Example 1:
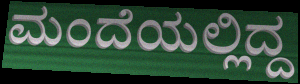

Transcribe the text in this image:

ಮಂದೆಯಲ್ಲಿದ್ದ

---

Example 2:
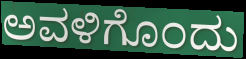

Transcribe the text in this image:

ಅವಳಿಗೊಂದು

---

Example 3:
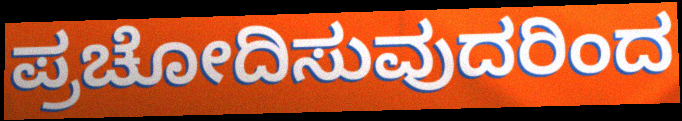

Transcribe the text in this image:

ಪ್ರಚೋದಿಸುವುದರಿಂದ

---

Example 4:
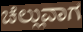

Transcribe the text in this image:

ಚೆಲ್ಲುವಾಗ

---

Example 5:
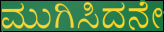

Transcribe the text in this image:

ಮುಗಿಸಿದನೇ